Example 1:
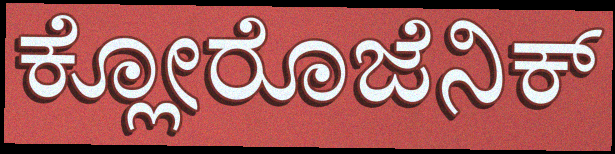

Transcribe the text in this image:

ಕ್ಲೋರೊಜೆನಿಕ್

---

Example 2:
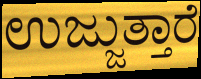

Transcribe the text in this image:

ಉಜ್ಜುತ್ತಾರೆ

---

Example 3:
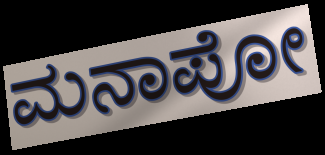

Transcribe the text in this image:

ಮನಾಪೋ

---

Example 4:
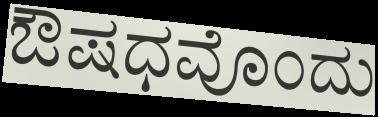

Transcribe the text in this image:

ಔಷಧವೊಂದು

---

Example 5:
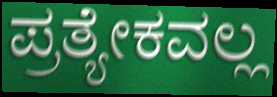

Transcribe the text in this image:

ಪ್ರತ್ಯೇಕವಲ್ಲ